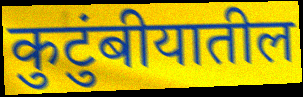
कुटुंबीयातील